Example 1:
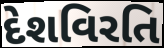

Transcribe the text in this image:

દેશવિરતિ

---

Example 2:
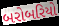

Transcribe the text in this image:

બરોબરિયો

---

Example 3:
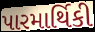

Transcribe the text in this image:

પારમાર્થિકી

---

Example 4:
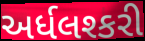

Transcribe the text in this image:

અર્ધલશ્કરી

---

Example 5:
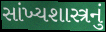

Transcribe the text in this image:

સાંખ્યશાસ્ત્રનું